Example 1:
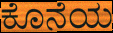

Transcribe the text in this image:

ಕೊನೆಯ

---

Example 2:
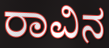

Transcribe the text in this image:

ರಾವಿನ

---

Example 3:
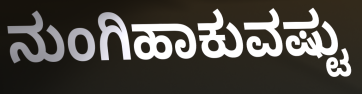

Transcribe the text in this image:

ನುಂಗಿಹಾಕುವಷ್ಟು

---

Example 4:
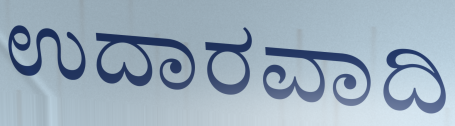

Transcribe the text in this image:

ಉದಾರವಾದಿ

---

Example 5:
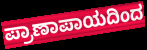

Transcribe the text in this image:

ಪ್ರಾಣಾಪಾಯದಿಂದ